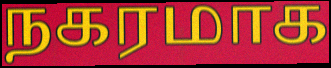
நகரமாக